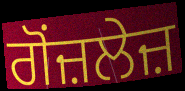
ਗੋਂਜ਼ਲੇਜ਼